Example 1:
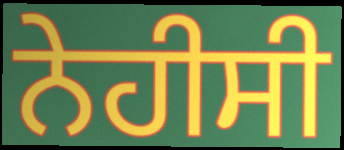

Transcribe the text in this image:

ਨੇਹੀਸੀ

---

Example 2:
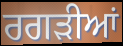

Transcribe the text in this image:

ਰਗੜੀਆਂ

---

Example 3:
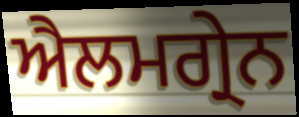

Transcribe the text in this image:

ਐਲਮਗ੍ਰੇਨ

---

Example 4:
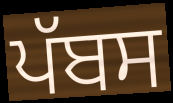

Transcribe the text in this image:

ਪੱਬਸ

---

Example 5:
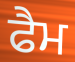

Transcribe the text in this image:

ਫੈਮ